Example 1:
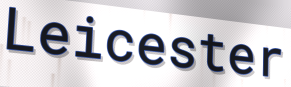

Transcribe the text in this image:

Leicester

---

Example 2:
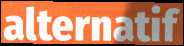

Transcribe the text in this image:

alternatif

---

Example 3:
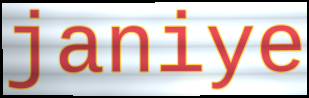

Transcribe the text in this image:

janiye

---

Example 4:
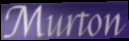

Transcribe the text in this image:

Murton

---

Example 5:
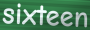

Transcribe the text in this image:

sixteen